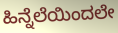
ಹಿನ್ನೆಲೆಯಿಂದಲೇ